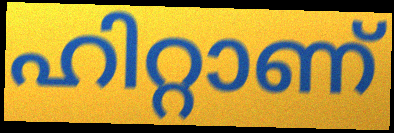
ഹിറ്റാണ്